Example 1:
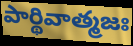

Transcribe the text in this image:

పార్థివాత్మజః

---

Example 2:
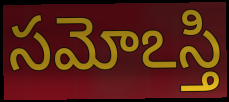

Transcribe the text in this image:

సమోఽస్తి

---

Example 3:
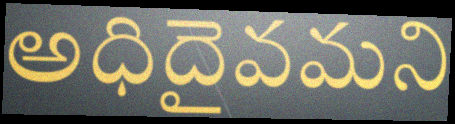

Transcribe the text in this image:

అధిదైవమని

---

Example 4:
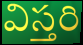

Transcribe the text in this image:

విస్తరి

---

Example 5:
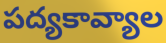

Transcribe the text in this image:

పద్యకావ్యాల